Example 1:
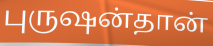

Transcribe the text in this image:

புருஷன்தான்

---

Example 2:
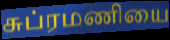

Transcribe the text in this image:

சுப்ரமணியை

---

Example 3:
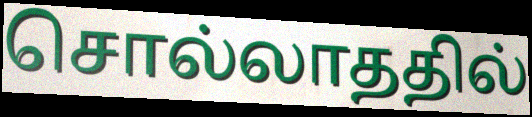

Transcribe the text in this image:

சொல்லாததில்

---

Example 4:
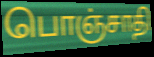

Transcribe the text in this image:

பொஞ்சாதி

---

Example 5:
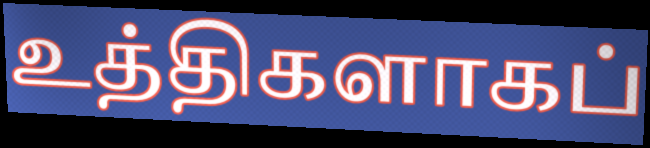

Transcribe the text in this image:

உத்திகளாகப்